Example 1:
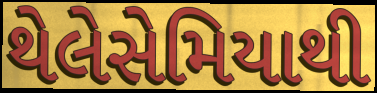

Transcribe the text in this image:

થેલેસેમિયાથી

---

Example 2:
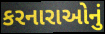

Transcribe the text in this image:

કરનારાઓનું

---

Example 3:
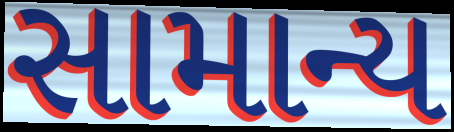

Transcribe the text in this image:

સામાન્ય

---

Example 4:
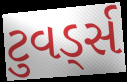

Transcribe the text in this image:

ટુવર્ડ્સ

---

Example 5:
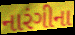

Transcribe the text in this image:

નારંગીના